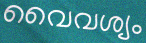
വൈവശ്യം